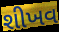
શીખવ